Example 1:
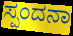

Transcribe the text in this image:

ಸ್ಪಂದನಾ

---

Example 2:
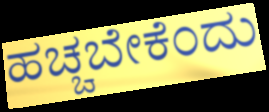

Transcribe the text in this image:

ಹಚ್ಚಬೇಕೆಂದು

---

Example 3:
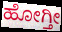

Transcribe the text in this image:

ಹೋಗ್ತೀ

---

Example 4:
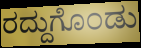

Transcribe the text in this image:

ರದ್ದುಗೊಂಡು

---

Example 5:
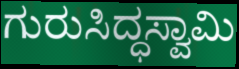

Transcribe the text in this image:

ಗುರುಸಿದ್ಧಸ್ವಾಮಿ